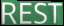
REST